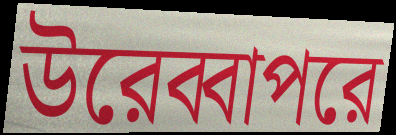
উরেব্বাপরে